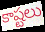
కాష్టలు